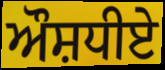
ਔਸ਼ਧੀਏ